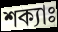
শক্যাঃ